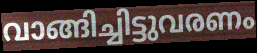
വാങ്ങിച്ചിട്ടുവരണം